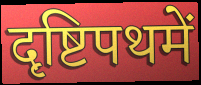
दृष्टिपथमें